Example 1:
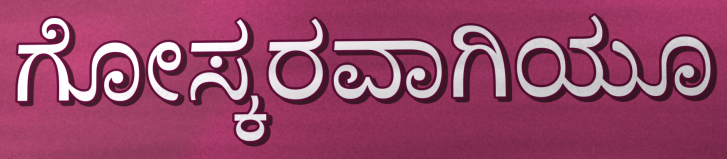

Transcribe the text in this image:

ಗೋಸ್ಕರವಾಗಿಯೂ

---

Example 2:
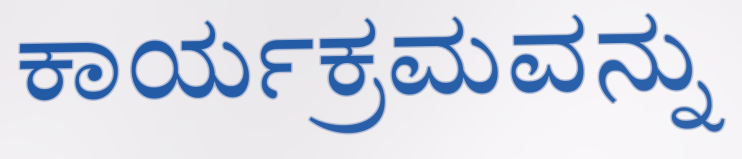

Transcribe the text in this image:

ಕಾರ್ಯಕ್ರಮವನ್ನು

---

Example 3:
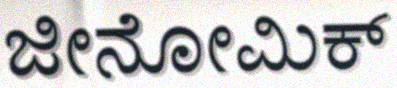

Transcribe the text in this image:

ಜೀನೋಮಿಕ್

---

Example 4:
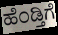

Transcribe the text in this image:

ಹೆಂಡ್ತಿಗೆ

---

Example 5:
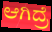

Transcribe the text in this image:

ಆಗಿದ್ರೆ